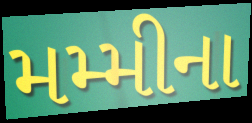
મમ્મીના